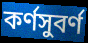
কর্ণসুবর্ণ